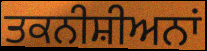
ਤਕਨੀਸ਼ੀਅਨਾਂ